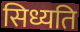
सिध्यति